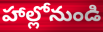
హాల్లోనుండి